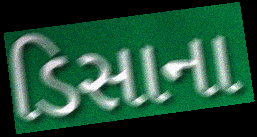
ડિસાના